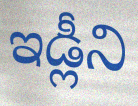
ఇడ్లీని